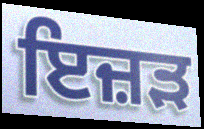
ਇਜ਼ੜ